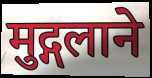
मुद्गलाने